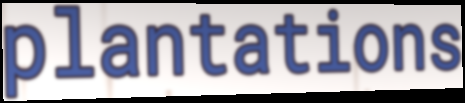
plantations